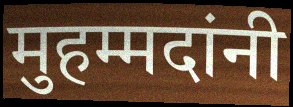
मुहम्मदांनी